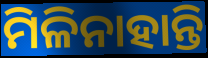
ମିଳିନାହାନ୍ତି